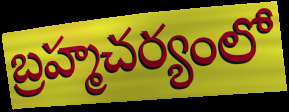
బ్రహ్మచర్యంలో